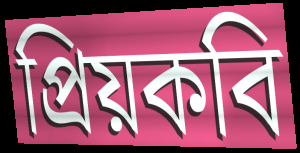
প্রিয়কবি